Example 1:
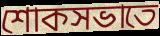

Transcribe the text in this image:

শোকসভাতে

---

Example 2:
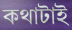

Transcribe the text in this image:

কথাটাই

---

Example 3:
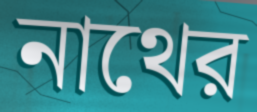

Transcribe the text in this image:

নাথের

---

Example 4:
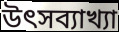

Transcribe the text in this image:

উৎসব্যাখ্যা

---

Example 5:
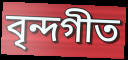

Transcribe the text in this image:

বৃন্দগীত